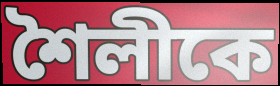
শৈলীকে